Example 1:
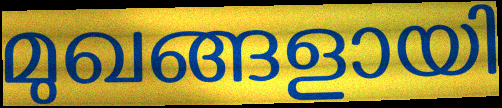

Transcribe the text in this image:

മുഖങ്ങളായി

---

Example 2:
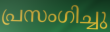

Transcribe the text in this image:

പ്രസംഗിച്ചു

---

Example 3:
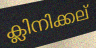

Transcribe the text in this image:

ക്ലിനിക്കല്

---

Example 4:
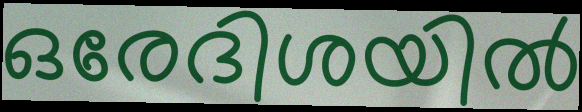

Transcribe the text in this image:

ഒരേദിശയിൽ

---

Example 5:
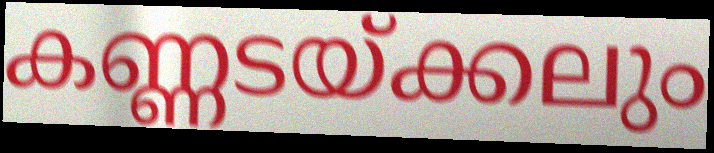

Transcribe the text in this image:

കണ്ണടയ്ക്കലും